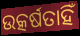
ଉତ୍କର୍ଷତାହିଁ